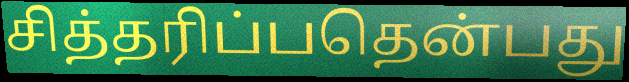
சித்தரிப்பதென்பது